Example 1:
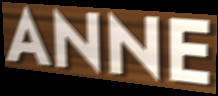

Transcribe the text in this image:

ANNE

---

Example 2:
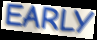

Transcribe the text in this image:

EARLY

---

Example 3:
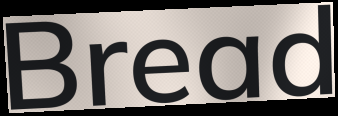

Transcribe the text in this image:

Bread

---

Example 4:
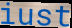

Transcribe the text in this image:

iust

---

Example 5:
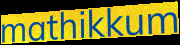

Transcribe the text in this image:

mathikkum